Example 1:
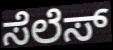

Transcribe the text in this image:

ಸೆಲೆಸ್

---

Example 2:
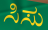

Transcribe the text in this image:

ಸಿಸು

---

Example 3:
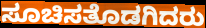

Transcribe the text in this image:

ಸೂಚಿಸತೊಡಗಿದರು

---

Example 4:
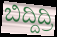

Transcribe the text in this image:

ಬಿದ್ದಿದ್ರಿ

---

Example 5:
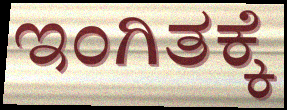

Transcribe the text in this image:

ಇಂಗಿತಕ್ಕೆ